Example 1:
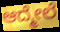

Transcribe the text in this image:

ಆದ್ಮೇಲೆ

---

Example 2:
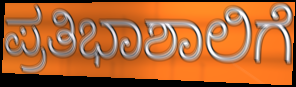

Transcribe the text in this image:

ಪ್ರತಿಭಾಶಾಲಿಗೆ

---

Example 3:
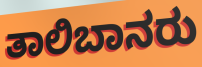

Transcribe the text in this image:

ತಾಲಿಬಾನರು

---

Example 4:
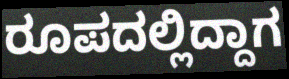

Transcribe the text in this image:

ರೂಪದಲ್ಲಿದ್ದಾಗ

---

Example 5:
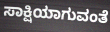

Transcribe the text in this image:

ಸಾಕ್ಷಿಯಾಗುವಂತೆ